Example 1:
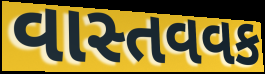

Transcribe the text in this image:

વાસ્તવવક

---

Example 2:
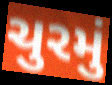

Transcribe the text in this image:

ચુરમું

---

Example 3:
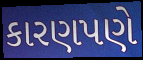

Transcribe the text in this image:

કારણપણે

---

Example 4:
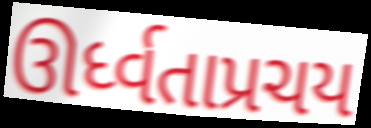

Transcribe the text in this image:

ઊર્ધ્વતાપ્રચય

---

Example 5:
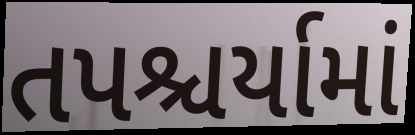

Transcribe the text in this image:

તપશ્ચર્યામાં